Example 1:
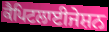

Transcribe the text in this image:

ਕੈਪਿਟਲਾਈਜੇਸ਼ਨ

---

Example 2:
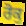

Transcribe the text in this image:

ਰੋਕੁ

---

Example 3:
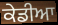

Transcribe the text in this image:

ਕੇਡੀਆ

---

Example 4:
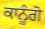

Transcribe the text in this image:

ਕਾਨੂੰਗੋ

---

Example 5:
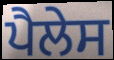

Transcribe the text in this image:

ਪੈਲੇਸ